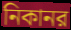
নিকানর